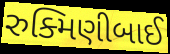
રુક્મિણીબાઈ